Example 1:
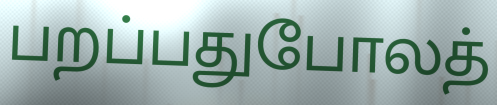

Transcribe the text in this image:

பறப்பதுபோலத்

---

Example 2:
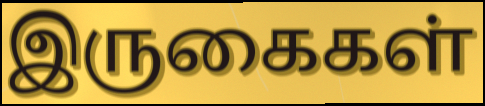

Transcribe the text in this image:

இருகைகள்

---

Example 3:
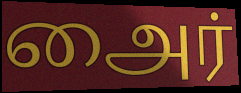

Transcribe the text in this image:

அைர்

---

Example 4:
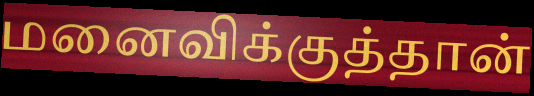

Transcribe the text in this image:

மனைவிக்குத்தான்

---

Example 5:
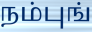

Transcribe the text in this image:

நம்புங்